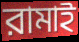
রামাই